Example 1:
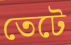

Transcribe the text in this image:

তেটে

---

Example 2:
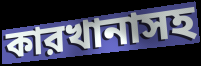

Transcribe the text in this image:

কারখানাসহ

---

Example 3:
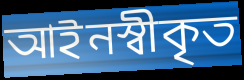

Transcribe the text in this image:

আইনস্বীকৃত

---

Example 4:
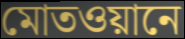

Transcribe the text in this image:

মোতওয়ানে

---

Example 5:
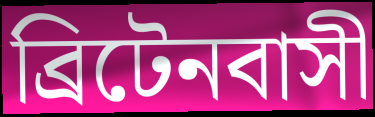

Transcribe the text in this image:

ব্রিটেনবাসী